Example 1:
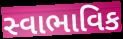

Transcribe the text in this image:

સ્વાભાવિક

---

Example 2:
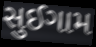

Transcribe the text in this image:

સુઈગામ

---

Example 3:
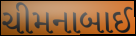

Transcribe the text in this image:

ચીમનાબાઈ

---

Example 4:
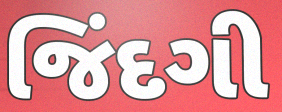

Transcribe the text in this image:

જિંદગી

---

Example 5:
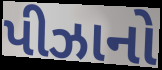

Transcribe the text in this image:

પીઝાનો